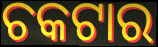
ଚକଟାର